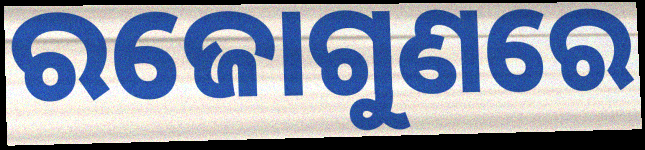
ରଜୋଗୁଣରେ